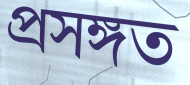
প্ৰসঙ্গত